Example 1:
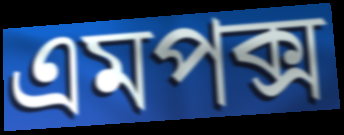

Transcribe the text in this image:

এমপক্স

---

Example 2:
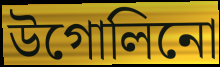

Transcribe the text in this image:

উগোলিনো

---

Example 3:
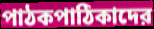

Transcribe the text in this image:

পাঠকপাঠিকাদের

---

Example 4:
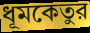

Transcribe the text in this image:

ধূমকেতুর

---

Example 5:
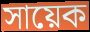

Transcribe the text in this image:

সায়েক